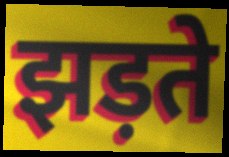
झड़ते